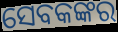
ସେବକଙ୍କର